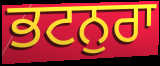
ਭਟਨੁਰਾ